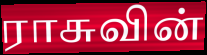
ராசுவின்